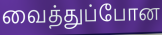
வைத்துப்போன